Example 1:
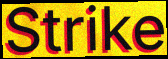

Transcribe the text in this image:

Strike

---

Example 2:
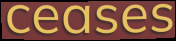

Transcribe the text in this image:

ceases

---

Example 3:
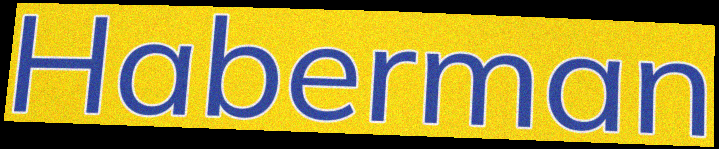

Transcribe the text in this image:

Haberman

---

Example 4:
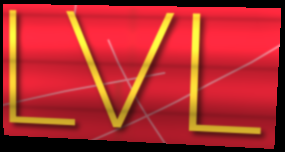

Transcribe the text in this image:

LVL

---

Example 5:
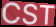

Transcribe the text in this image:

CST